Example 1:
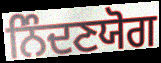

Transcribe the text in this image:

ਨਿੰਦਣਯੋਗ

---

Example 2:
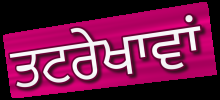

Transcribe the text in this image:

ਤਟਰੇਖਾਵਾਂ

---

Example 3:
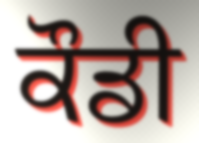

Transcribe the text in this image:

ਕੌਡੀ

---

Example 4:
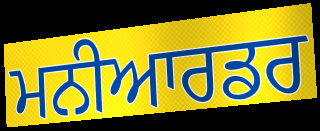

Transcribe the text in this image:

ਮਨੀਆਰਡਰ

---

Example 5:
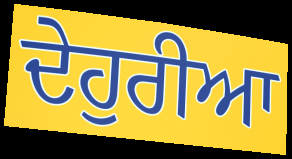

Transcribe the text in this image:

ਦੇਹੁਰੀਆ